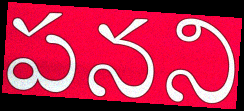
పనని